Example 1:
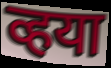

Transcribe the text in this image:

व्हया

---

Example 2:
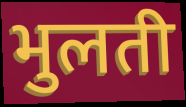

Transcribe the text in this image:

भुलती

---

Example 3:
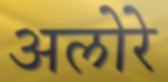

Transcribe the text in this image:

अलोरे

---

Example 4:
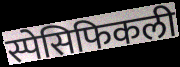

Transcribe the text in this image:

स्पेसिफिकली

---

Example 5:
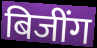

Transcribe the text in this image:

बिजींग